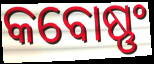
କବୋଷ୍ଣଂ